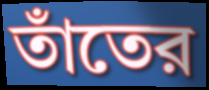
তাঁতের